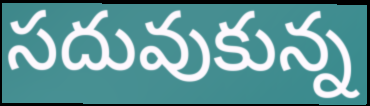
సదువుకున్న